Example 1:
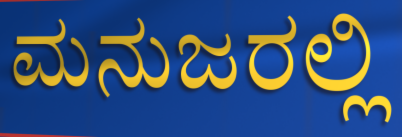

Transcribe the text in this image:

ಮನುಜರಲ್ಲಿ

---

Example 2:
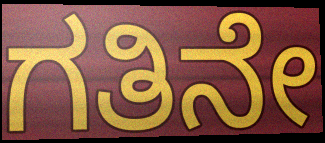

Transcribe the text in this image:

ಗತಿನೇ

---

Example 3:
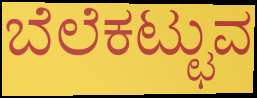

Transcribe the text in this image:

ಬೆಲೆಕಟ್ಟುವ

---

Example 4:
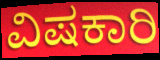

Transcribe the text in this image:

ವಿಷಕಾರಿ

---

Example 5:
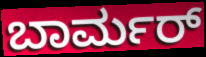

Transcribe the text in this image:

ಬಾರ್ಮರ್